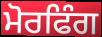
ਮੋਰਫਿੰਗ